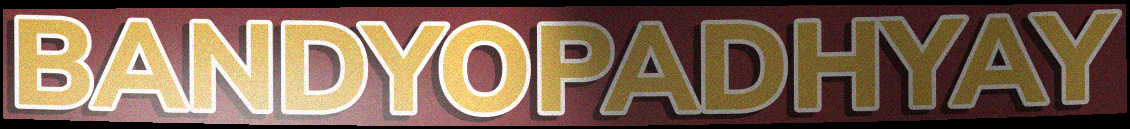
BANDYOPADHYAY